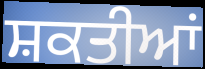
ਸ਼ਕਤੀਆਂ